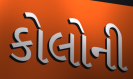
કોલોની